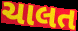
ચાલત